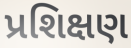
પ્રશિક્ષણ